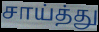
சாய்த்து